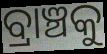
ବ୍ରାଞ୍ଚକୁ